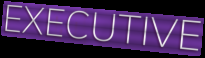
EXECUTIVE